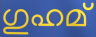
ഗുഹമ്